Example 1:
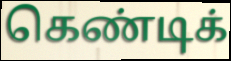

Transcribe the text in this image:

கெண்டிக்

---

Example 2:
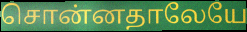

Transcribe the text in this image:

சொன்னதாலேயே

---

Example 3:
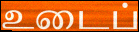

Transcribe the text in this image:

உடைப்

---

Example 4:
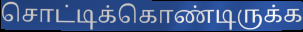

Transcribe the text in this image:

சொட்டிக்கொண்டிருக்க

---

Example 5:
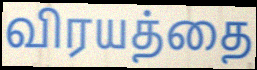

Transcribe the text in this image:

விரயத்தை